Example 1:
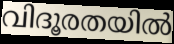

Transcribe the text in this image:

വിദൂരതയിൽ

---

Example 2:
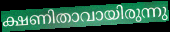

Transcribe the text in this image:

ക്ഷണിതാവായിരുന്നു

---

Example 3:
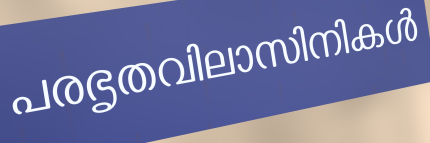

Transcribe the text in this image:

പരഭൃതവിലാസിനികൾ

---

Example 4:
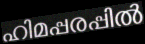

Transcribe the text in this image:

ഹിമപ്പരപ്പിൽ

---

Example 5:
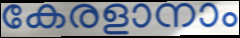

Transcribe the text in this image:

കേരളാനാം